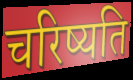
चरिष्यति